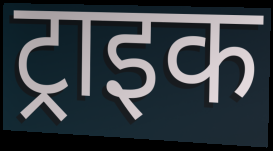
ट्राइक